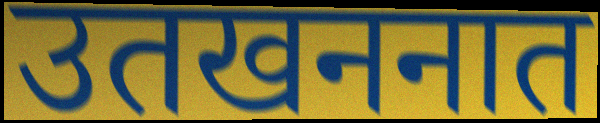
उतखननात